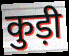
कुड़ी